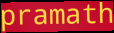
pramath